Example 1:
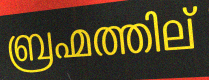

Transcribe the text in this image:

ബ്രഹ്മത്തില്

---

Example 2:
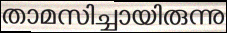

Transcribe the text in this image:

താമസിച്ചായിരുന്നു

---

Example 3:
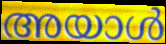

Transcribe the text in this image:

അയാൾ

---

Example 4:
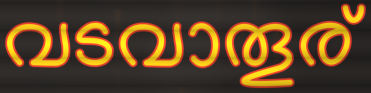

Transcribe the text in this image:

വടവാതൂര്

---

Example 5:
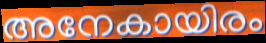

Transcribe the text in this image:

അനേകായിരം